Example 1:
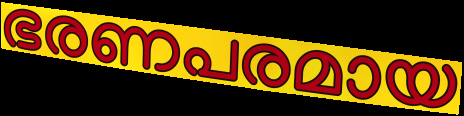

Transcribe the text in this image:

ഭരണപരമായ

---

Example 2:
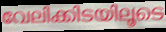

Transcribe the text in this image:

വേലിക്കിടയിലൂടെ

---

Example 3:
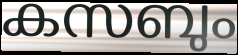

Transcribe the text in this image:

കസബും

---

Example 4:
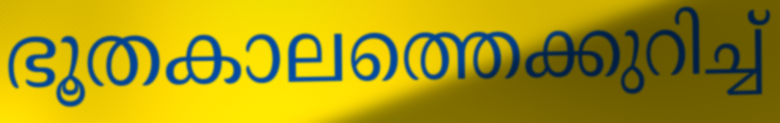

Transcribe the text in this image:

ഭൂതകാലത്തെക്കുറിച്ച്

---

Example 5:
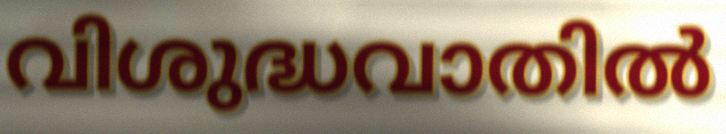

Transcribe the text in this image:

വിശുദ്ധവാതിൽ